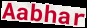
Aabhar